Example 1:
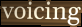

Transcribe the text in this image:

voicing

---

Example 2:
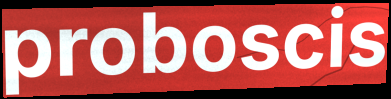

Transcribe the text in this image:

proboscis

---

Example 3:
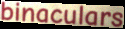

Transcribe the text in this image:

binaculars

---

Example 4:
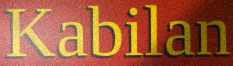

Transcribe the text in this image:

Kabilan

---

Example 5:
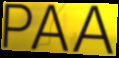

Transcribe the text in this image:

PAA